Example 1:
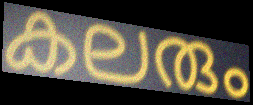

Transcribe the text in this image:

കലരും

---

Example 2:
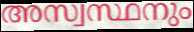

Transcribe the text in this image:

അസ്വസ്ഥനും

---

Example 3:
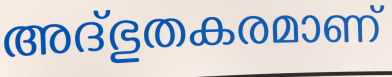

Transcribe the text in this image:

അദ്ഭുതകരമാണ്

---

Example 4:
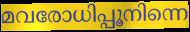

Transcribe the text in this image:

മവരോധിപ്പൂനിന്നെ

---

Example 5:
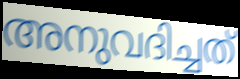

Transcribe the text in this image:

അനുവദിച്ചത്